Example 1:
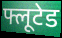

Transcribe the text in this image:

फ्लूटेड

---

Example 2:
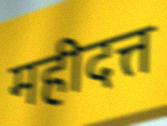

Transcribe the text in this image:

महीदत्त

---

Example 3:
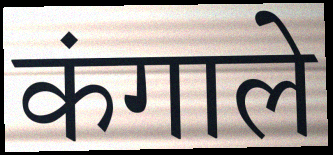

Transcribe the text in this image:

कंगाले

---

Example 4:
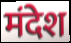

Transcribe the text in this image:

मंदेश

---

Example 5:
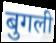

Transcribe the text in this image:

बुगली